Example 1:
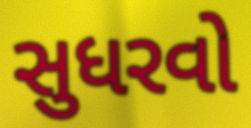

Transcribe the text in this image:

સુધરવો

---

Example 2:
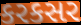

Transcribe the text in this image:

કરકસર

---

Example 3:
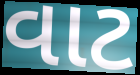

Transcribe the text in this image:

વાટ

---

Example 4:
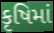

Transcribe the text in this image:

કૃષિમાં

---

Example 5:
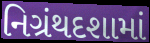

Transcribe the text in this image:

નિગ્રંથદશામાં